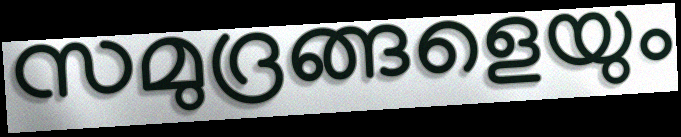
സമുദ്രങ്ങളെയും